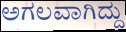
ಅಗಲವಾಗಿದ್ದು